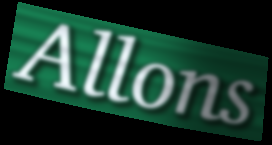
Allons